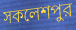
সকলেশপুর